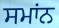
ਸਮਾਂਨ